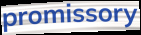
promissory